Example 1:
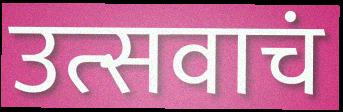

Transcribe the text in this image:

उत्सवाचं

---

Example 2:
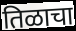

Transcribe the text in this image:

तिळाचा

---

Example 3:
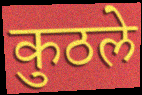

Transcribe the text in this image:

कुठले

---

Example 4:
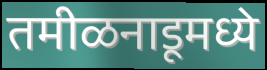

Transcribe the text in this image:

तमीळनाडूमध्ये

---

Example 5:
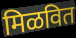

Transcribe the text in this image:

मिळवित